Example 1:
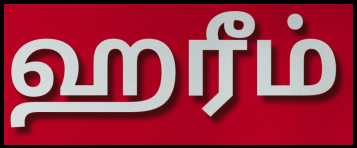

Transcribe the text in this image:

ஹரீம்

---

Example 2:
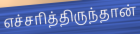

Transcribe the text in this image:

எச்சரித்திருந்தான்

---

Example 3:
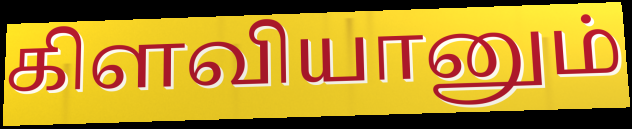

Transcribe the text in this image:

கிளவியானும்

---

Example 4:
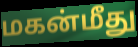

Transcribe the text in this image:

மகன்மீது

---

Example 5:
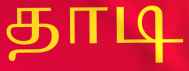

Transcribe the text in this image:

தாடி